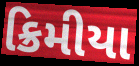
ક્રિમીયા